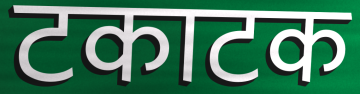
टकाटक